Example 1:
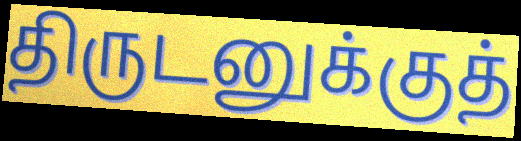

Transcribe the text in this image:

திருடனுக்குத்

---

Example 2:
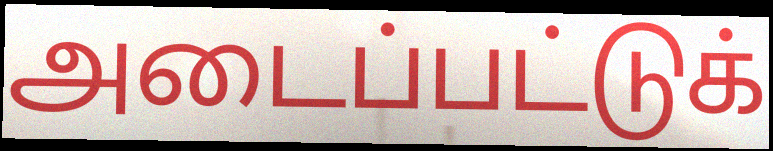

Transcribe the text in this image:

அடைப்பட்டுக்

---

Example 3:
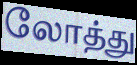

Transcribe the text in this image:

லோத்து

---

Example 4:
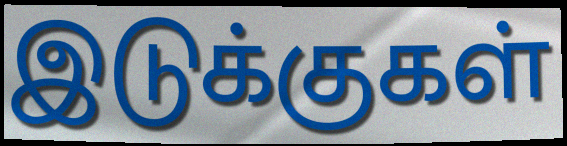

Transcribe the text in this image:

இடுக்குகள்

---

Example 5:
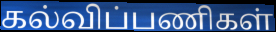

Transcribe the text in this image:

கல்விப்பணிகள்